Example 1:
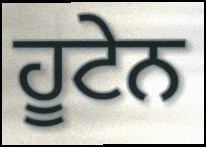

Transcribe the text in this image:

ਹੂਟੇਨ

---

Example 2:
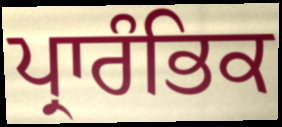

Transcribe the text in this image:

ਪ੍ਰਾਰੰਭਿਕ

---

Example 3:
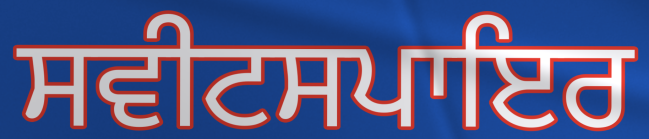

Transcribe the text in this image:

ਸਵੀਟਸਪਾਇਰ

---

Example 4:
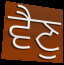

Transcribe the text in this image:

ਵੈਣੁ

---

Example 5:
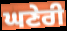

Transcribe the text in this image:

ਘਣੇਰੀ